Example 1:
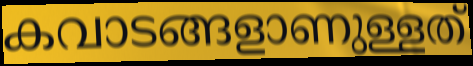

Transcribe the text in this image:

കവാടങ്ങളാണുള്ളത്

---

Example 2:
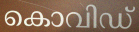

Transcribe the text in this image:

കൊവിഡ്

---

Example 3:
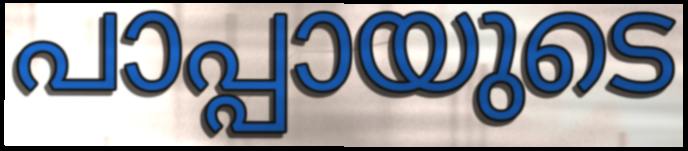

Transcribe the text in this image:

പാപ്പായുടെ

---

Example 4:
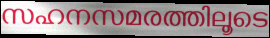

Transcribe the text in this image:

സഹനസമരത്തിലൂടെ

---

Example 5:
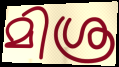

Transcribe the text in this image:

മിശ്ര